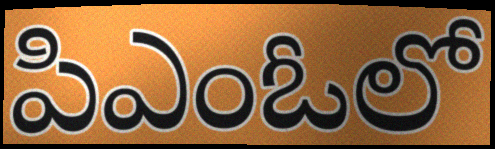
పిఎంఓలో